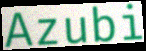
Azubi